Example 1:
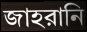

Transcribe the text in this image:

জাহরানি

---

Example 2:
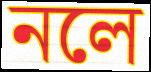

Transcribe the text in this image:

নলে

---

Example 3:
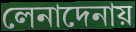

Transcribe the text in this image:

লেনাদেনায়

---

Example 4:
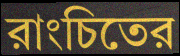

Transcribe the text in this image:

রাংচিতের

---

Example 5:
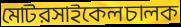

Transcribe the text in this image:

মোটরসাইকেলচালক